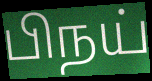
பிநய்